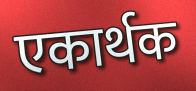
एकार्थक